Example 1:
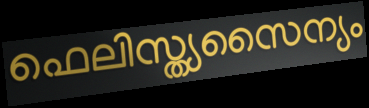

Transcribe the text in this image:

ഫെലിസ്ത്യസൈന്യം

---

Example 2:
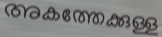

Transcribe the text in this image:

അകത്തേക്കുള്ള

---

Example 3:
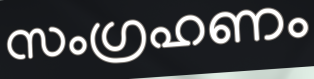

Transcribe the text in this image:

സംഗ്രഹണം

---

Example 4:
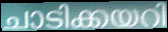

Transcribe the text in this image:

ചാടിക്കയറി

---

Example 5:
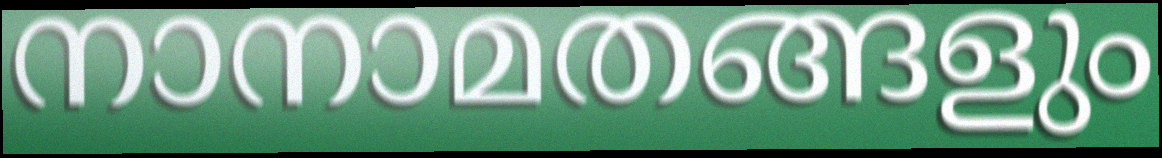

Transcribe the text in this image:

നാനാമതങ്ങളും